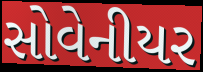
સોવેનીયર